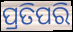
ପ୍ରତିପରି